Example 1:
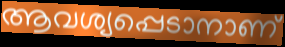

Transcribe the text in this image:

ആവശ്യപ്പെടാനാണ്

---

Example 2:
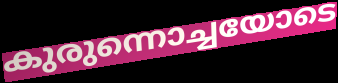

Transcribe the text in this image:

കുരുന്നൊച്ചയോടെ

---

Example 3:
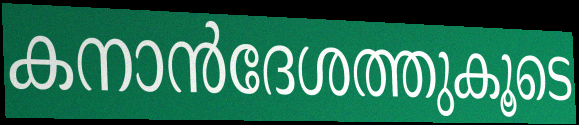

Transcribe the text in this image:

കനാൻദേശത്തുകൂടെ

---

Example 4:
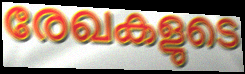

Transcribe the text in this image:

രേഖകളുടെ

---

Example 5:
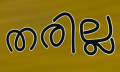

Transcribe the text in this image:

തരില്ല